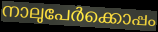
നാലുപേർക്കൊപ്പം